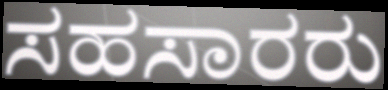
ಸಹಸಾರರು